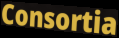
Consortia